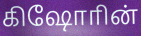
கிஷோரின்